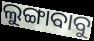
ଲୁଙ୍ଗାବାବୁ